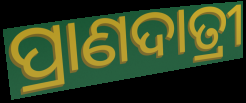
ପ୍ରାଣଦାତ୍ରୀ